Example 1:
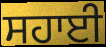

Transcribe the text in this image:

ਸਹਾਈ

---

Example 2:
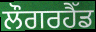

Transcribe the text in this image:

ਲੌਗਰਹੈੱਡ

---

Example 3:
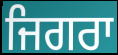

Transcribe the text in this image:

ਜਿਗਰਾ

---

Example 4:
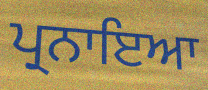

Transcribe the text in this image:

ਪ੍ਰਨਾਇਆ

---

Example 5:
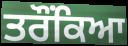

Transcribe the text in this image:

ਤਰੌਂਕਿਆ